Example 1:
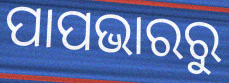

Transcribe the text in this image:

ପାପଭାରରୁ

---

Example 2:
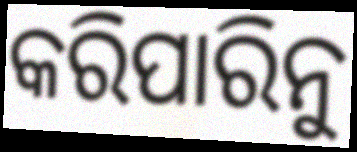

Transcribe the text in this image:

କରିପାରିନୁ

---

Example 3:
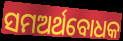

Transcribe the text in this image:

ସମଅର୍ଥବୋଧକ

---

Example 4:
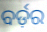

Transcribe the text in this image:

ବର୍ଡ଼ର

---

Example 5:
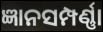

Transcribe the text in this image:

ଜ୍ଞାନସମ୍ପର୍ଣ୍ଣା